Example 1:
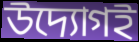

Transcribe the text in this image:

উদ্যোগই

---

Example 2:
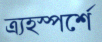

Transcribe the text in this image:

ত্র্যহস্পর্শে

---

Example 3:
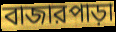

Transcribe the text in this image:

বাজারপাড়া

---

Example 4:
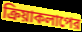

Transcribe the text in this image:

ক্রিয়াকলাপের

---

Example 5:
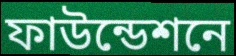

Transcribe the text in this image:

ফাউন্ডেশনে